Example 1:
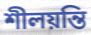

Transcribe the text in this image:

শীলয়ন্তি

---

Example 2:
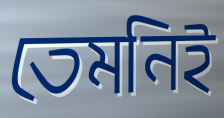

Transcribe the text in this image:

তেমনিই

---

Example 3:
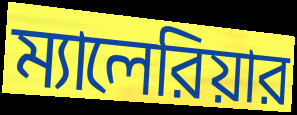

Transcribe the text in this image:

ম্যালেরিয়ার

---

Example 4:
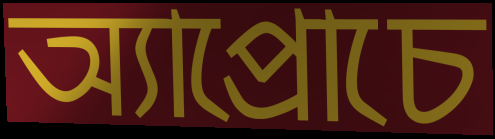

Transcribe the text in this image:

অ্যাপ্রোচে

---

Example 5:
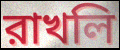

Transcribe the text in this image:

রাখলি